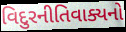
વિદુરનીતિવાક્યનો